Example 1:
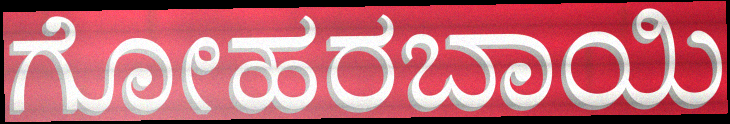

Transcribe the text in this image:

ಗೋಹರಬಾಯಿ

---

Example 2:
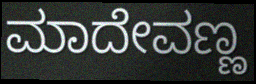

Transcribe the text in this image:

ಮಾದೇವಣ್ಣ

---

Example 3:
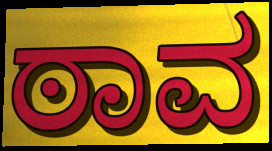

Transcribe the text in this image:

ಠಾವ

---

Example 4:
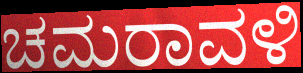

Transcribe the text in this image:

ಚಮರಾವಳಿ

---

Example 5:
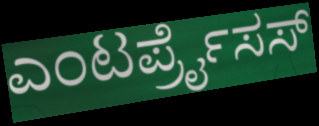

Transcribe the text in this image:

ಎಂಟರ್ಪ್ರೈಸಸ್